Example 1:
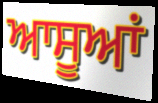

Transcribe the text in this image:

ਆਸੂਆਂ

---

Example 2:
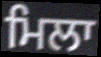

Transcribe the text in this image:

ਮਿਲਾ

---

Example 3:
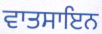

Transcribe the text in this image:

ਵਾਤਸਾਇਨ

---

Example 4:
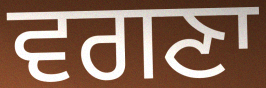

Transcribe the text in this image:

ਵਗਣਾ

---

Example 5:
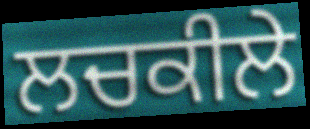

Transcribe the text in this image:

ਲਚਕੀਲੇ